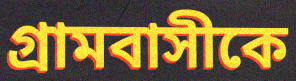
গ্রামবাসীকে